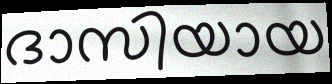
ദാസിയായ